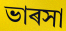
ভাৰসা